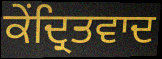
ਕੇਂਦ੍ਰਿਤਵਾਦ